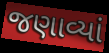
જણાવ્યાં